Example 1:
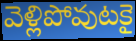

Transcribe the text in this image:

వెళ్లిపోవుటకై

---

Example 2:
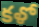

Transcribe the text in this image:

కళో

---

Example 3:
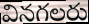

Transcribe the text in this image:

వినగలరు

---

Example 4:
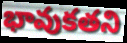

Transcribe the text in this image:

భావుకతని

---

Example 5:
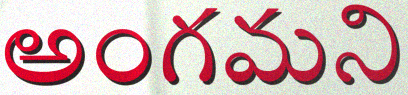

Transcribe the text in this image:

అంగమని